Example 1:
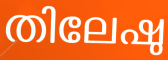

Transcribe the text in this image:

തിലേഷു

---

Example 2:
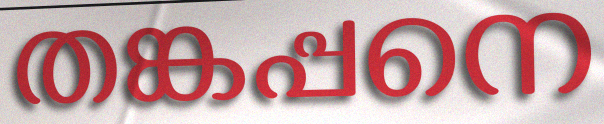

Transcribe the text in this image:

തങ്കപ്പനെ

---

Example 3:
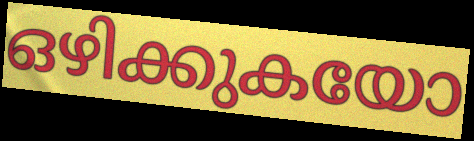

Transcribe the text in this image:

ഒഴിക്കുകയോ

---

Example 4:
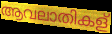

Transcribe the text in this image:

ആവലാതികള്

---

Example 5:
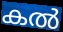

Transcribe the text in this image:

കൽ